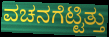
ವಚನಗೆಟ್ಟಿತ್ತು